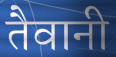
तैवानी